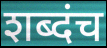
शब्दंच